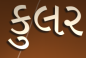
કુલર